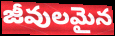
జీవులమైన